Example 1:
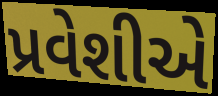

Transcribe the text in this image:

પ્રવેશીએ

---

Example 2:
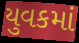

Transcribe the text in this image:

યુવકમાં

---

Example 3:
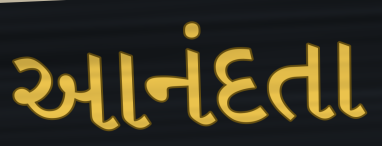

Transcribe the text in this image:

આનંદતા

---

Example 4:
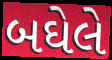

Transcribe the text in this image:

બઘેલે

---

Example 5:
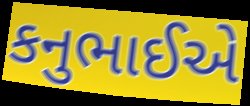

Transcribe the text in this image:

કનુભાઈએ